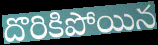
దొరికిపోయిన